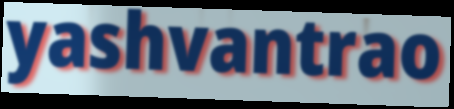
yashvantrao